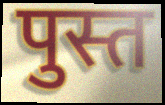
पुस्त